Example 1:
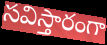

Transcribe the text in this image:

సవిస్తారంగా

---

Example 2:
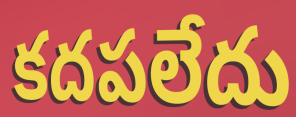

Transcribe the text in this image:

కదపలేదు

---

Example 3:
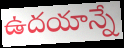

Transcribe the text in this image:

ఉదయాన్నే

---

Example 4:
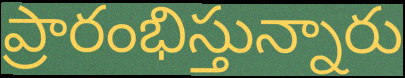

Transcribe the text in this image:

ప్రారంభిస్తున్నారు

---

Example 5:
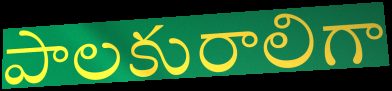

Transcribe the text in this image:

పాలకురాలిగా